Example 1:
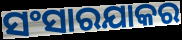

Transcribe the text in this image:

ସଂସାରଯାକର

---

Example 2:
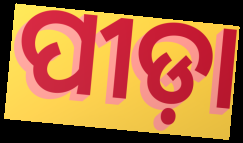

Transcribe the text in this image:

ପୀଡ଼ା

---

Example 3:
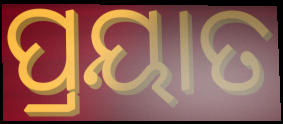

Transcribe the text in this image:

ପ୍ରୟାତ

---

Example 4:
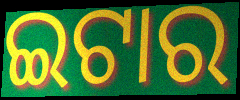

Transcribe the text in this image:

ଇଟାର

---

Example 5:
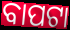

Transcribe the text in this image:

ବାପଟା